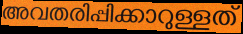
അവതരിപ്പിക്കാറുള്ളത്